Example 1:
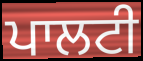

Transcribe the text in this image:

ਪਾਲਟੀ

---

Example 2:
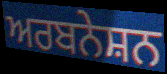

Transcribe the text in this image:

ਅਰਬਨੇਸ਼ਨ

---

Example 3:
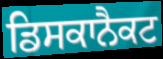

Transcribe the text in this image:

ਡਿਸਕਾਨੈਕਟ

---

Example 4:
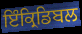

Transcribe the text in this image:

ਇੰਕ੍ਰਿਡਿਬਲ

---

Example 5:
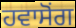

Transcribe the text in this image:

ਹਵਾਸੋਂਗ